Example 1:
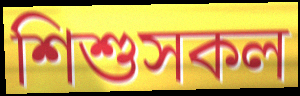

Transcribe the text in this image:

শিশুসকল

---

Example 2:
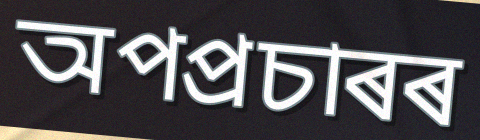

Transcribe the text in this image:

অপপ্ৰচাৰৰ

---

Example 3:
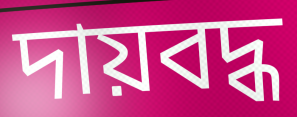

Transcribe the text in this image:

দায়বদ্ধ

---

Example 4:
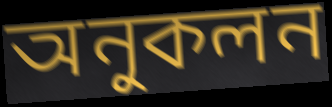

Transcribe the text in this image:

অনুকলন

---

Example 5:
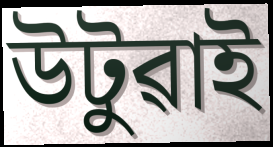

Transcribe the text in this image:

উটুৱাই